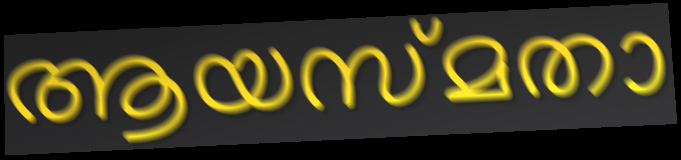
ആയസ്മതാ